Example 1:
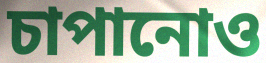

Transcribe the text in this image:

চাপানোও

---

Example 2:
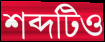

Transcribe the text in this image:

শব্দটিও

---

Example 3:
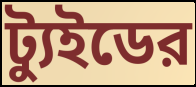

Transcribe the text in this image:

ট্যুইডের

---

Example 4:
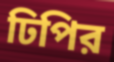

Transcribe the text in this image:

ঢিপির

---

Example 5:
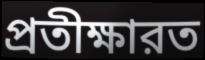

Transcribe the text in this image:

প্রতীক্ষারত